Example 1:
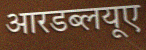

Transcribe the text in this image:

आरडब्लयूए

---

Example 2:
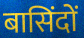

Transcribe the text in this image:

बासिंदों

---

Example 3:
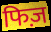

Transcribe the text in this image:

फिज़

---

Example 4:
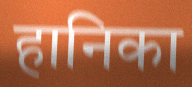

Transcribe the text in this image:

हानिका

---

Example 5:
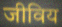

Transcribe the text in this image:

जीविय